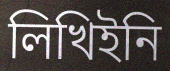
লিখিইনি